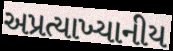
અપ્રત્યાખ્યાનીય